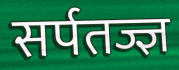
सर्पतज्ज्ञ